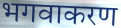
भगवाकरण